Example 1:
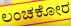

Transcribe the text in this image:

ಲಂಚಕೋರ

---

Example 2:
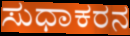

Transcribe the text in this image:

ಸುಧಾಕರನ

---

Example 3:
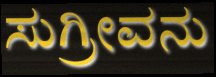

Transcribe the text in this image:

ಸುಗ್ರೀವನು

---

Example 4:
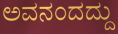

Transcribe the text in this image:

ಅವನಂದದ್ದು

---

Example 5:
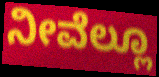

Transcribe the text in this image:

ನೀವೆಲ್ಲೂ